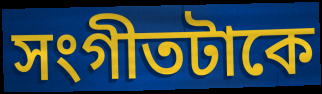
সংগীতটাকে